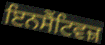
ਇਨਸੈਂਟਿਵਜ਼